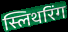
स्लिथरिंग